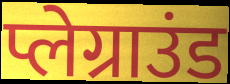
प्लेग्राउंड